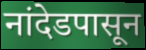
नांदेडपासून